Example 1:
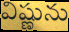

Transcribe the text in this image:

విష్ణును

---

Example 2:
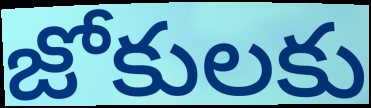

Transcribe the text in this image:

జోకులకు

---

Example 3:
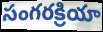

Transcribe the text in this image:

సంగరక్రియా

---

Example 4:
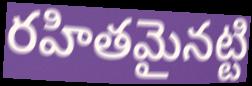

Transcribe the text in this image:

రహితమైనట్టి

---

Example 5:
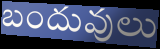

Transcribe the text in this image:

బందువులు